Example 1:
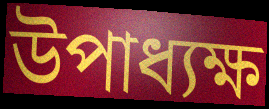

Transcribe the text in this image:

উপাধ্যক্ষ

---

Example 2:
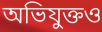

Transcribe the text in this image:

অভিযুক্তও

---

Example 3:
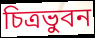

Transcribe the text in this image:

চিত্রভুবন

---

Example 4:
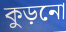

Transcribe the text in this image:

কুড়নো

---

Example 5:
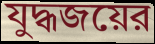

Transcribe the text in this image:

যুদ্ধজয়ের